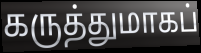
கருத்துமாகப்